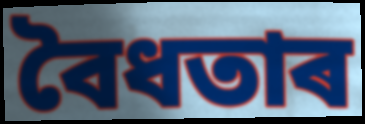
বৈধতাৰ